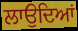
ਲਾਉਦਿਆਂ